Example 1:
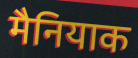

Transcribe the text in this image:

मैनियाक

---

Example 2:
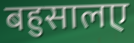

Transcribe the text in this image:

बहुसालए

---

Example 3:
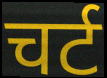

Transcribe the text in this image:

चर्ट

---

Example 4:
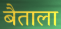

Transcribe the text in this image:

बैताला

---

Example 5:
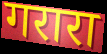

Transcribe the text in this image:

गरारा